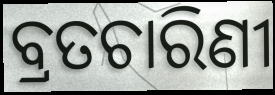
ବ୍ରତଚାରିଣୀ